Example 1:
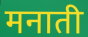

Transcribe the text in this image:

मनाती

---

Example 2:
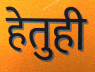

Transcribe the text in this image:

हेतुही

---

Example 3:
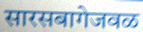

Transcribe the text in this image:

सारसबागेजवळ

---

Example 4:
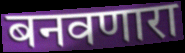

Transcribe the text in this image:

बनवणारा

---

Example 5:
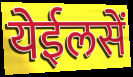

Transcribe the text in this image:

येईलसें